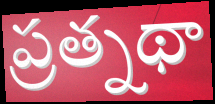
ప్రత్నథా